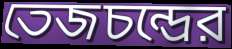
তেজচন্দ্রের